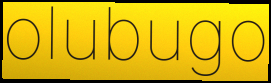
olubugo